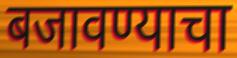
बजावण्याचा